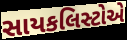
સાયકલિસ્ટોએ